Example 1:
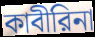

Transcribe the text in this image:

কাবীরিনা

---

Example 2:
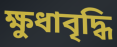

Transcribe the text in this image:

ক্ষুধাবৃদ্ধি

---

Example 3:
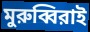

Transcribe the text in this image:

মুরুব্বিরাই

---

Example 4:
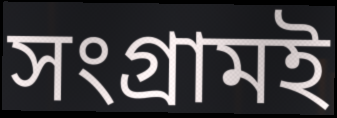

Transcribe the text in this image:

সংগ্রামই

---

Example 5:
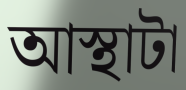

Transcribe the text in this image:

আস্থাটা